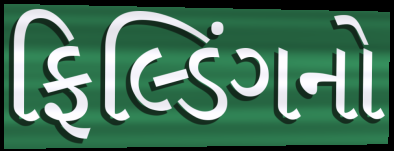
ફિલ્ડિંગનો